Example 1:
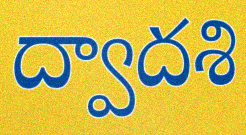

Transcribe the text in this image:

ద్వాదశి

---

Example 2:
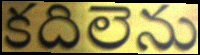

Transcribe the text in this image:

కదిలెను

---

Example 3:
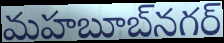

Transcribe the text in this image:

మహబూబ్‌నగర్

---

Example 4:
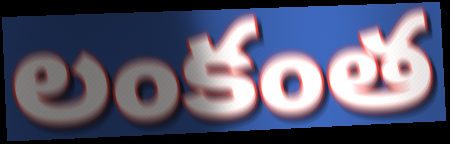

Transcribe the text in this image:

లంకంత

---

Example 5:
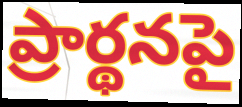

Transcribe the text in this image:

ప్రార్థనపై